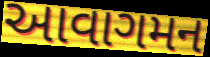
આવાગમન